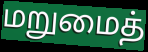
மறுமைத்